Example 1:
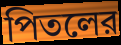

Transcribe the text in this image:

পিতলের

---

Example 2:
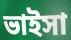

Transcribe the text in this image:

ভাইসা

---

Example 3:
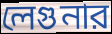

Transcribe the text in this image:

লেগুনার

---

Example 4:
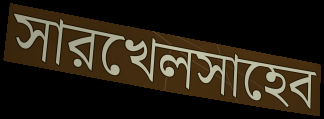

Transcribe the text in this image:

সারখেলসাহেব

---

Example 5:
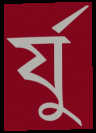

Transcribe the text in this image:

র্যু